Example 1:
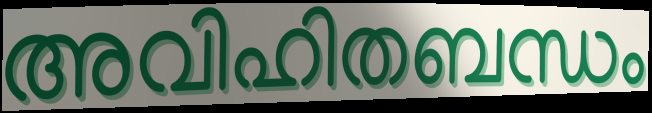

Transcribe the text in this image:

അവിഹിതബന്ധം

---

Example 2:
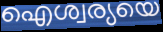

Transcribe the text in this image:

ഐശ്വര്യയെ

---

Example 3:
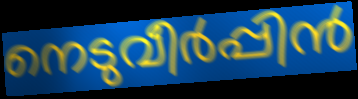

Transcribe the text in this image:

നെടുവീർപ്പിൻ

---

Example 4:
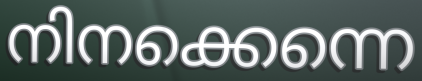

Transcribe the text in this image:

നിനക്കെന്നെ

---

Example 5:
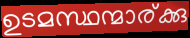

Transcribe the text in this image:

ഉടമസ്ഥന്മാര്ക്കു